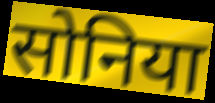
सोनिया